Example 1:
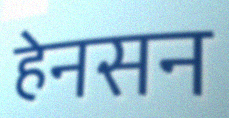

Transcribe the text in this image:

हेनसन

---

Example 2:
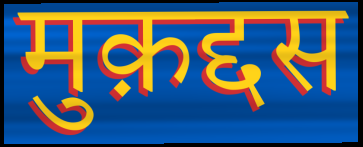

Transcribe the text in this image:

मुक़द्दस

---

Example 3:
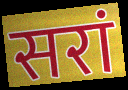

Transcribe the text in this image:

सरां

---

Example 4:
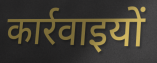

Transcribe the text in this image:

कार्रवाइयों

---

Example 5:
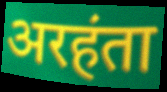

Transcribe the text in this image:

अरहंता